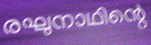
രഘുനാഥിന്റെ